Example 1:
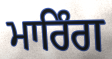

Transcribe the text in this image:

ਮਾਰਿੰਗ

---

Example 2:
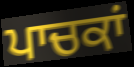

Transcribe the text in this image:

ਪਾਚਕਾਂ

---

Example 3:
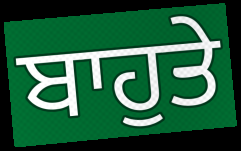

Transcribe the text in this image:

ਬਾਹੁਤੇ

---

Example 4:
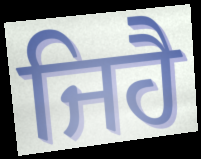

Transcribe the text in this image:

ਜਿਹੈ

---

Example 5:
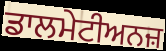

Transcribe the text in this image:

ਡਾਲਮੇਟੀਅਨਜ਼